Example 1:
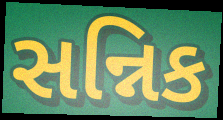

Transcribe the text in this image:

સન્નિક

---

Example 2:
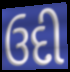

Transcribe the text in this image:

ઉદી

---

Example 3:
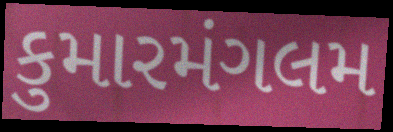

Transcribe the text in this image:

કુમારમંગલમ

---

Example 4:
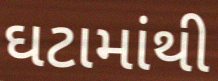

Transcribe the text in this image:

ઘટામાંથી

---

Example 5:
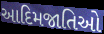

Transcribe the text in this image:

આદિમજાતિઓ